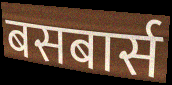
बसबार्स